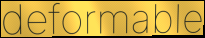
deformable